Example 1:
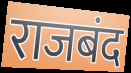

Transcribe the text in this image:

राजबंद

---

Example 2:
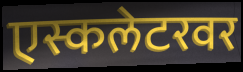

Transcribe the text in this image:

एस्कलेटरवर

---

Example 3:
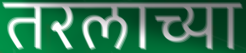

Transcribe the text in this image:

तरलाच्या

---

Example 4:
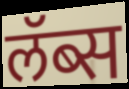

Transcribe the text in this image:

लॅब्स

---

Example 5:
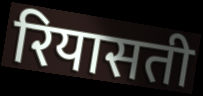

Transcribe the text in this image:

रियासती